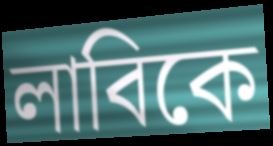
লাবিকে